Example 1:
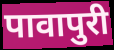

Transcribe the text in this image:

पावापुरी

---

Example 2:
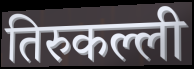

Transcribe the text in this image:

तिरुकल्ली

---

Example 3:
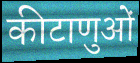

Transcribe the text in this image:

कीटाणुओं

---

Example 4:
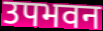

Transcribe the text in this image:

उपभवन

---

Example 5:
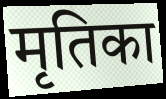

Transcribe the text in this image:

मृतिका